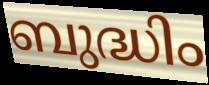
ബുദ്ധിം